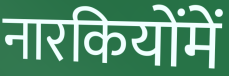
नारकियोंमें